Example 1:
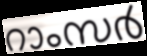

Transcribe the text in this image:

റാംസർ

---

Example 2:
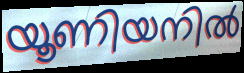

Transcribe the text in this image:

യൂണിയനിൽ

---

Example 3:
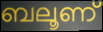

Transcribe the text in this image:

ബലൂണ്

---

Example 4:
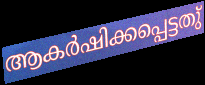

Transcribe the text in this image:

ആകർഷിക്കപ്പെട്ടതു്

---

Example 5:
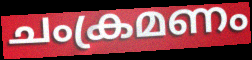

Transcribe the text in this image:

ചംക്രമണം